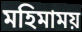
মহিমাময়